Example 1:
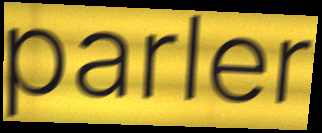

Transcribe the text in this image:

parler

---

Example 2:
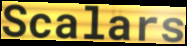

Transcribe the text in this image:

Scalars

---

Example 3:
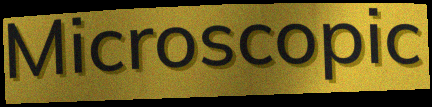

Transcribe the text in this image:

Microscopic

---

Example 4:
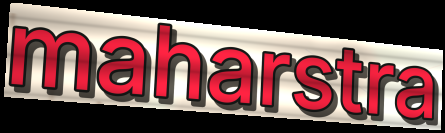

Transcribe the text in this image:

maharstra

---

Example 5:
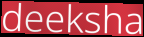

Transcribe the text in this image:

deeksha